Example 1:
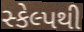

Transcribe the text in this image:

સ્કેલ્પથી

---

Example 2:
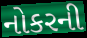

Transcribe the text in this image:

નોકરની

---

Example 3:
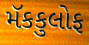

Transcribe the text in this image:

મૅકકુલોફ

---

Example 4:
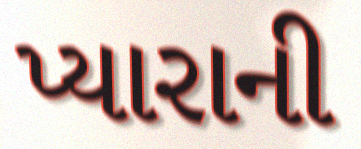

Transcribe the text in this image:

પ્યારાની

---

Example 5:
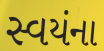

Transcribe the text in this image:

સ્વયંના